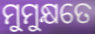
ମୁମୁକ୍ଷତେ